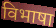
विभाषा